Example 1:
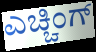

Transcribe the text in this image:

ಎಚ್ಚಿಂಗ್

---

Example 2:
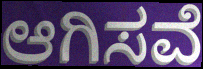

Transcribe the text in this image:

ಆಗಿಸವೆ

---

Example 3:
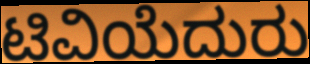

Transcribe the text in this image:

ಟಿವಿಯೆದುರು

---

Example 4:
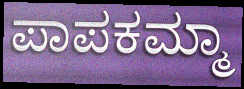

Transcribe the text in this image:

ಪಾಪಕಮ್ಮಾ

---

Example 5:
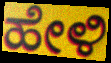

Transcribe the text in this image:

ಹೇಳಿ